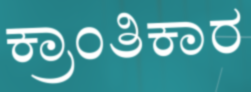
ಕ್ರಾಂತಿಕಾರ